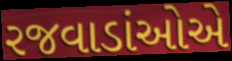
રજવાડાંઓએ